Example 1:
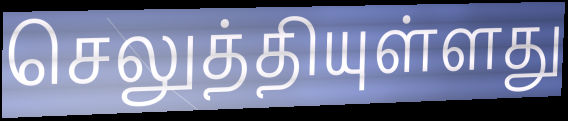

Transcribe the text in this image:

செலுத்தியுள்ளது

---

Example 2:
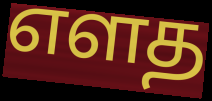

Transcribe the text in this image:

எளத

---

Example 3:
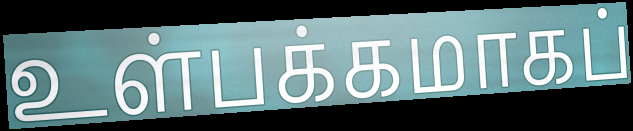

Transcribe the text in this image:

உள்பக்கமாகப்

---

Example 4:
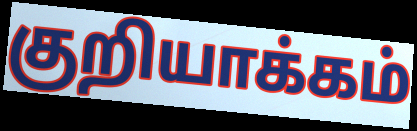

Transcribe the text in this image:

குறியாக்கம்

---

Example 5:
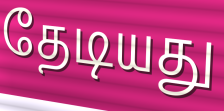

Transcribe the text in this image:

தேடியது